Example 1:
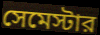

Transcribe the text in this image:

সেমেস্টার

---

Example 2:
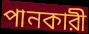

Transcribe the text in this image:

পানকারী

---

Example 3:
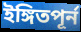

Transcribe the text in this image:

ইঙ্গিতপূর্ন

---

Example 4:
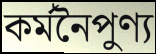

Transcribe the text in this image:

কর্মনৈপুণ্য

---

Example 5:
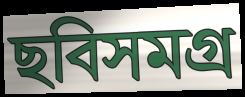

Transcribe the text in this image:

ছবিসমগ্র